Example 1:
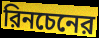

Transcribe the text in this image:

রিনচেনের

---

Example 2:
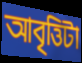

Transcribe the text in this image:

আবৃত্তিটা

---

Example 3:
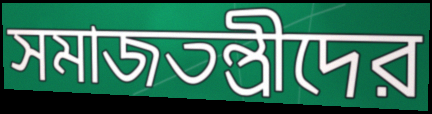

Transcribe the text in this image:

সমাজতন্ত্রীদের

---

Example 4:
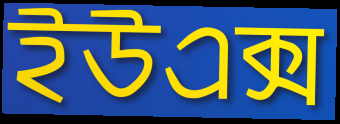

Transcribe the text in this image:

ইউএক্স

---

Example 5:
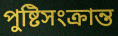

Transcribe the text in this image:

পুষ্টিসংক্রান্ত